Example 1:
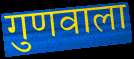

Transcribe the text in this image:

गुणवाला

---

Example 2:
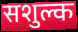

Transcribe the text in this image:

सशुल्क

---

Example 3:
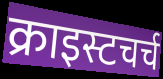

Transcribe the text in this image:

क्राइस्टचर्च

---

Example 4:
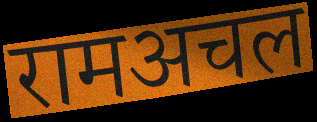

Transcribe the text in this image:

रामअचल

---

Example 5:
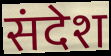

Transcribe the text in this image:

संदेश